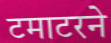
टमाटरने